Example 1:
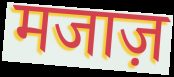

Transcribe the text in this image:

मजाज़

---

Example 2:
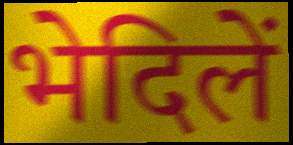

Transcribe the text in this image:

भेदिलें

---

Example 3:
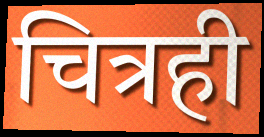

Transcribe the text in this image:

चित्रही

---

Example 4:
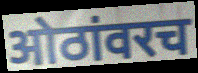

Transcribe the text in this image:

ओठांवरच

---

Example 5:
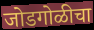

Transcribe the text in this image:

जोडगोळीचा